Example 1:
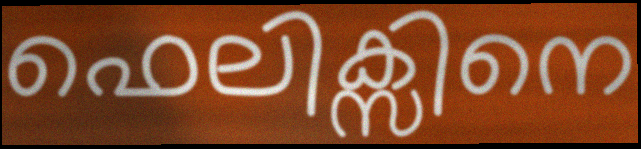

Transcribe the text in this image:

ഫെലിക്സിനെ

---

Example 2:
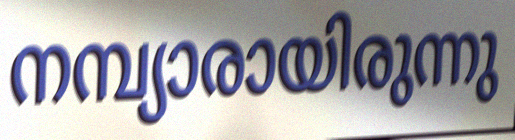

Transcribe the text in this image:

നമ്പ്യാരായിരുന്നു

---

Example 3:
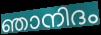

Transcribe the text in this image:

ഞാനിദം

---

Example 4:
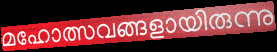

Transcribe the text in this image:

മഹോത്സവങ്ങളായിരുന്നു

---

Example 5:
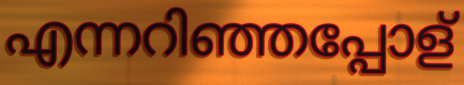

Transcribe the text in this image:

എന്നറിഞ്ഞപ്പോള്